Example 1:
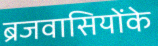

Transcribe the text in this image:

ब्रजवासियोंके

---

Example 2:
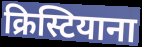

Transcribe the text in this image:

क्रिस्टियाना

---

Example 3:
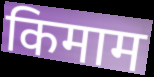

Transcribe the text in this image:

किमाम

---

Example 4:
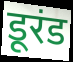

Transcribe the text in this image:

डूरंड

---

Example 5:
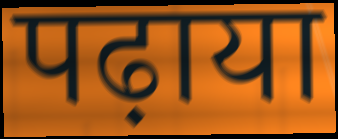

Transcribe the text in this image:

पढ़ाया